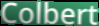
Colbert